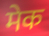
मेक